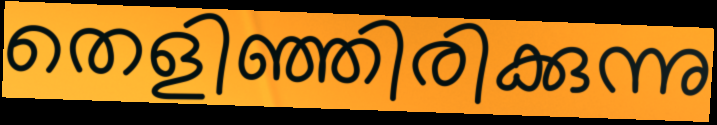
തെളിഞ്ഞിരിക്കുന്നു